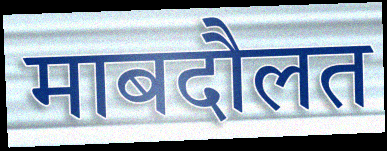
माबदौलत